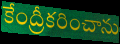
కేంద్రీకరించాను